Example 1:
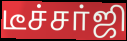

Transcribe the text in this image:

டீச்சர்ஜி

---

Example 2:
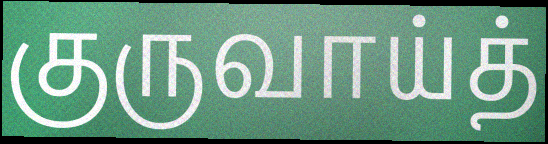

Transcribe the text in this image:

குருவாய்த்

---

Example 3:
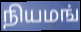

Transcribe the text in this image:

நியமங்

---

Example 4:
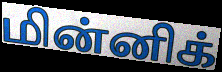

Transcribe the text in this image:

மின்னிக்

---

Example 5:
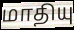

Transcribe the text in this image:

மாதியு